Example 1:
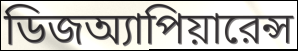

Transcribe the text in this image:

ডিজঅ্যাপিয়ারেন্স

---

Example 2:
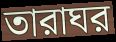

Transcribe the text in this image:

তারাঘর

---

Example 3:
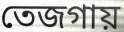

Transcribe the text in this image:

তেজগায়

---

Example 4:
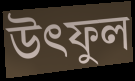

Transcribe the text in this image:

উৎফুল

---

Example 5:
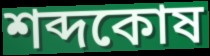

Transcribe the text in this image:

শব্দকোষ